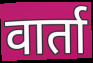
वार्ता